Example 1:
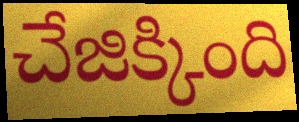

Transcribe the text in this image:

చేజిక్కింది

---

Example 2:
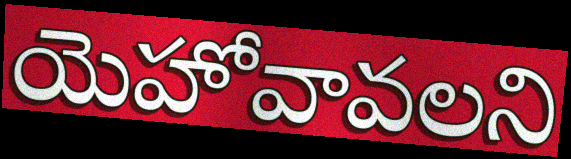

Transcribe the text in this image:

యెహోవావలని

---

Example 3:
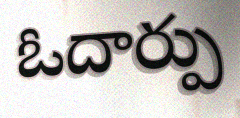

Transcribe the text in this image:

ఓదార్పు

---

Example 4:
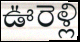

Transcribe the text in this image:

ఊరెళ్లి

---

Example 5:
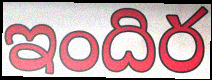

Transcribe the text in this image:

ఇందిర